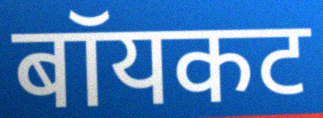
बॉयकट